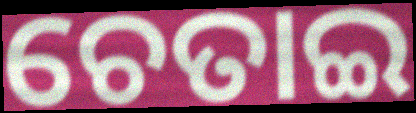
ଚେତାଇ